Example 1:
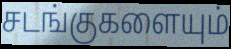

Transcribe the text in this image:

சடங்குகளையும்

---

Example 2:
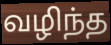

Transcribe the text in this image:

வழிந்த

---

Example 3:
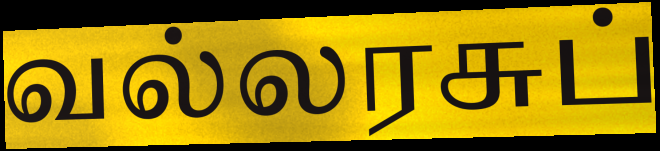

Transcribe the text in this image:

வல்லரசுப்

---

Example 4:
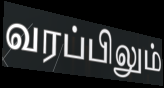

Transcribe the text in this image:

வரப்பிலும்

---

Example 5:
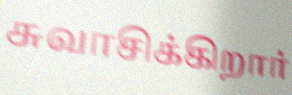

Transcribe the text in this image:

சுவாசிக்கிறார்